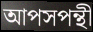
আপসপন্থী